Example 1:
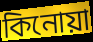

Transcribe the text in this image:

কিনোয়া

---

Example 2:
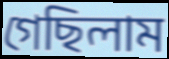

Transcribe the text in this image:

গেছিলাম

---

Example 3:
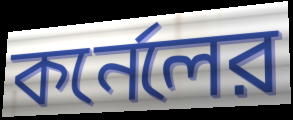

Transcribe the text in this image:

কর্নেলের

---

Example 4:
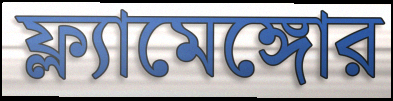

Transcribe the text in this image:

ফ্ল্যামেঙ্গোর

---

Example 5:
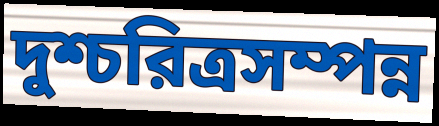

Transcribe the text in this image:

দুশ্চরিত্রসম্পন্ন